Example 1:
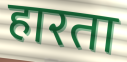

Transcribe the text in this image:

हारता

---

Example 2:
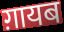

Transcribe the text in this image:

ग़ायब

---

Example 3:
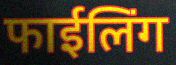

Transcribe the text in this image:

फाईलिंग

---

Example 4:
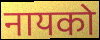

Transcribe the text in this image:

नायको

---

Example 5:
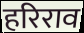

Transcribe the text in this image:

हरिराव